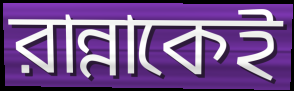
রান্নাকেই